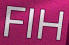
FIH